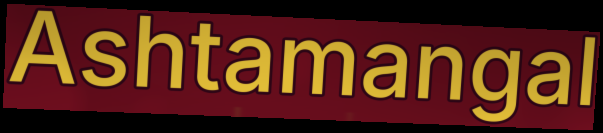
Ashtamangal